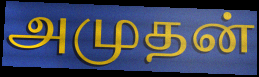
அமுதன்